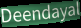
Deendayal